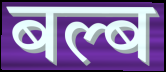
बल्‍ब